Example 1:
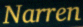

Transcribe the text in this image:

Narren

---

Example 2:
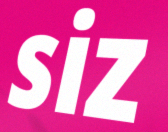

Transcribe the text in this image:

siz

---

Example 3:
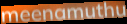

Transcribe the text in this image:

meenamuthu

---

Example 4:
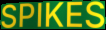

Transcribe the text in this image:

SPIKES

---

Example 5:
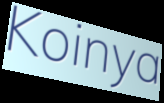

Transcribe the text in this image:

Koinya